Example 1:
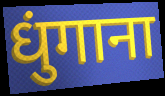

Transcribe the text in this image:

धुंगाना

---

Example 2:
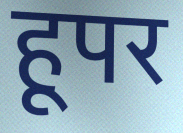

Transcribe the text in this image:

हूपर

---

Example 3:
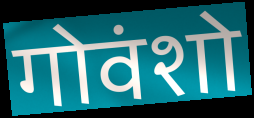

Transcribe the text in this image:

गोवंशो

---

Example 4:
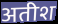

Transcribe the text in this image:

अतीश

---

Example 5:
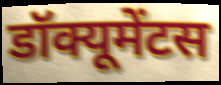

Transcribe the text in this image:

डॉक्यूमेंटस